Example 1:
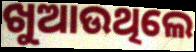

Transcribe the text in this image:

ଖୁଆଉଥିଲେ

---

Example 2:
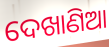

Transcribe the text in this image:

ଦେଖାଣିଆ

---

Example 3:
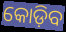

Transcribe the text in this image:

କୋଡ଼ିବ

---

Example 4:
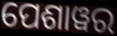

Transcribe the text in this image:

ପେଶାୱର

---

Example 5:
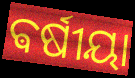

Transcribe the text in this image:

ଵର୍ଷୀୟା